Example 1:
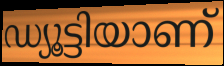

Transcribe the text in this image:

ഡ്യൂട്ടിയാണ്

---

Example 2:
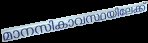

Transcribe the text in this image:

മാനസികാവസ്ഥയിലേക്ക്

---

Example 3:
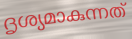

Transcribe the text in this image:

ദൃശ്യമാകുന്നത്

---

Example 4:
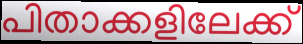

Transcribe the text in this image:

പിതാക്കളിലേക്ക്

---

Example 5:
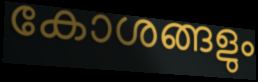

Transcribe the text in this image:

കോശങ്ങളും